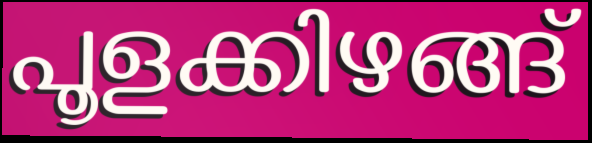
പൂളക്കിഴങ്ങ്